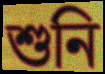
শুনি